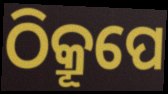
ଠିକ୍ରୂପେ